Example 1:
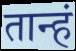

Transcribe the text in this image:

तान्हं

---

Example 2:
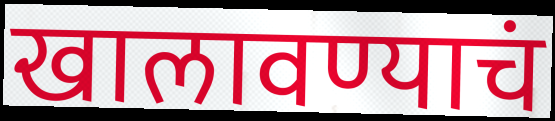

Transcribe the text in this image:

खालावण्याचं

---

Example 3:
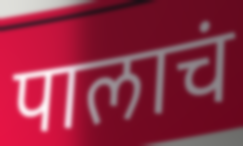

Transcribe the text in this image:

पालाचं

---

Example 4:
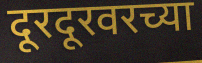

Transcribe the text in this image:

दूरदूरवरच्या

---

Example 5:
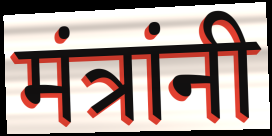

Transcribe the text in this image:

मंत्रांनी